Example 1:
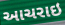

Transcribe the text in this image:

આચરાઇ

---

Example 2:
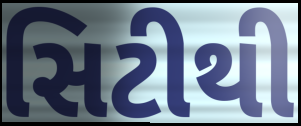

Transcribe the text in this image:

સિટીથી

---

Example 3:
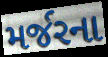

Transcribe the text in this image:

મર્જરના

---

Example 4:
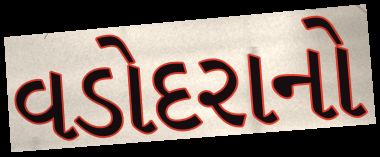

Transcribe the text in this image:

વડોદરાનો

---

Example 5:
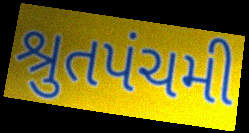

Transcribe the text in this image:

શ્રુતપંચમી